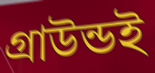
গ্রাউন্ডই